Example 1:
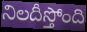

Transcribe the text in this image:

నిలదీస్తోంది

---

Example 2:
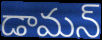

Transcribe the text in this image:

డామన్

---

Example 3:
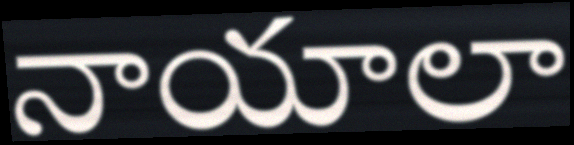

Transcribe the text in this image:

నాయాలా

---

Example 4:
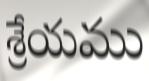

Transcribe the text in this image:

శ్రేయము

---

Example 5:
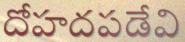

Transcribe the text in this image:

దోహదపడేవి